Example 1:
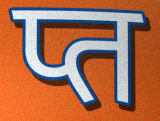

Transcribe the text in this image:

प्त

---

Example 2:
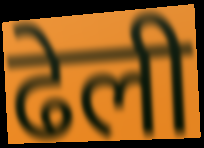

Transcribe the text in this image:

ढेली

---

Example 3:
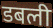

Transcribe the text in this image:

डबली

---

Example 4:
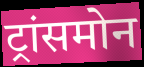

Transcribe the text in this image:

ट्रांसमोन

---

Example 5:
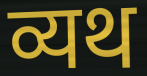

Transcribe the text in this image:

व्यथ